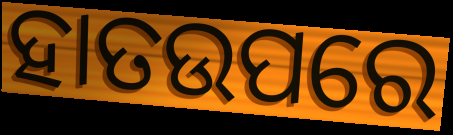
ହାତଉପରେ